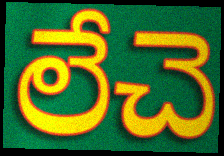
లేచె